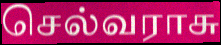
செல்வராசு